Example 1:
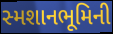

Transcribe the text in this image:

સ્મશાનભૂમિની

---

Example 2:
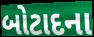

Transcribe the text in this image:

બોટાદના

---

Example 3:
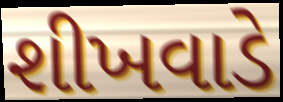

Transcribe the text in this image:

શીખવાડે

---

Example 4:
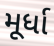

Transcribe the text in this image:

મૂર્ધા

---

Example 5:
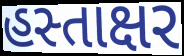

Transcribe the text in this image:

હસ્તાક્ષર